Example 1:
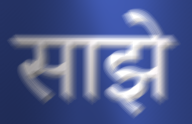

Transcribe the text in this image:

साझे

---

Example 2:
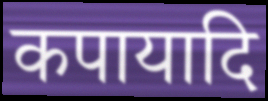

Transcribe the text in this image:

कपायादि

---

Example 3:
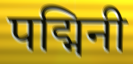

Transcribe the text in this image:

पद्मिनी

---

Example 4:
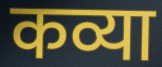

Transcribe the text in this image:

कव्या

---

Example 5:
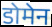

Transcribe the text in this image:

डोमेन